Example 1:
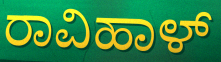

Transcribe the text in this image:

ರಾವಿಹಾಳ್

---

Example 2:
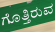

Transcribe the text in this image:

ಗೊತ್ತಿರುವ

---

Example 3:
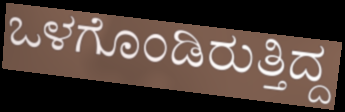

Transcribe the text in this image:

ಒಳಗೊಂಡಿರುತ್ತಿದ್ದ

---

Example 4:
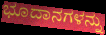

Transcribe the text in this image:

ಭೂದಾನಗಳನ್ನು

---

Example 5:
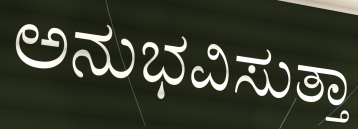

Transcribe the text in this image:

ಅನುಭವಿಸುತ್ತಾ